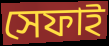
সেফাই